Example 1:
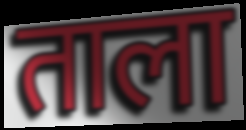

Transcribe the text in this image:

ताला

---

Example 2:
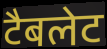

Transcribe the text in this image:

टैबलेट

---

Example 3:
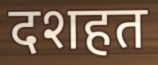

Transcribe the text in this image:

दशहत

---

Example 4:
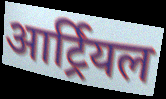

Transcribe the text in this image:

आर्ट्रियल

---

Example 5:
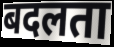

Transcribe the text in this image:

बदलता